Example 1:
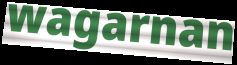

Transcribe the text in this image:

wagarnan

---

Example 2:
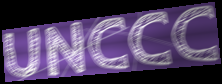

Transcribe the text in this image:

UNCCC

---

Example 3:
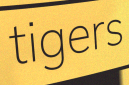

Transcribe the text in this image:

tigers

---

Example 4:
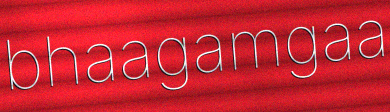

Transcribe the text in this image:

bhaagamgaa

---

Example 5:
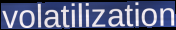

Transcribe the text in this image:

volatilization